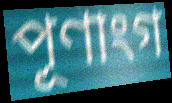
পূণাংগ